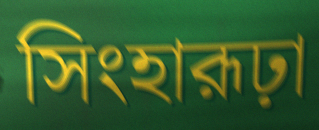
সিংহারূঢ়া